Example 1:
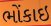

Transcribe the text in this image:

ભોંકાઇ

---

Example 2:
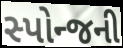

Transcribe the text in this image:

સ્પોન્જની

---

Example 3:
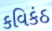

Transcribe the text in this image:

કવિકંઠ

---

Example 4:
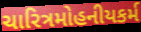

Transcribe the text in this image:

ચારિત્રમોહનીયકર્મ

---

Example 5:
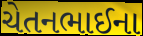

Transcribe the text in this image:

ચેતનભાઈના